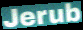
Jerub